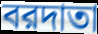
বরদাতা